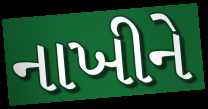
નાખીને